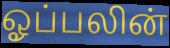
ஓப்பலின்